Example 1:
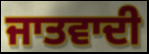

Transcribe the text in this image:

ਜਾਤਵਾਦੀ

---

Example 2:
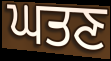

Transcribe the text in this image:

ਘਤਣ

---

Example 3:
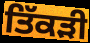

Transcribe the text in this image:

ਤਿੱਕੜੀ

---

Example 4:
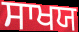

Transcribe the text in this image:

ਸਾਖਯ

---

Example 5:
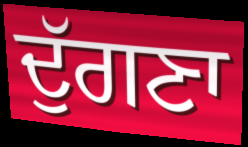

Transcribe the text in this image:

ਦੁੱਗਣਾ